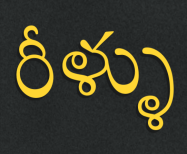
రీళ్ళు